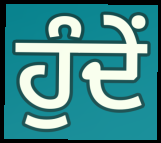
ਹੁੰਦੇਂ